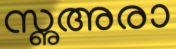
സൢഅരാ